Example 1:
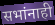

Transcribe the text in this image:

सभांनाही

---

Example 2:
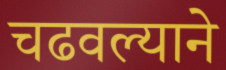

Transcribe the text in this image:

चढवल्याने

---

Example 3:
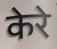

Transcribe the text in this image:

केरे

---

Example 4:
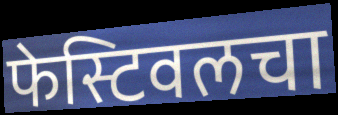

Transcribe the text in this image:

फेस्टिवलचा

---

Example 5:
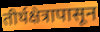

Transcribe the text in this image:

तीर्थक्षेत्रापासून